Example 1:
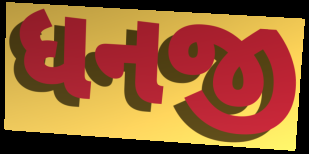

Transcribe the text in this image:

ધનજી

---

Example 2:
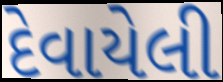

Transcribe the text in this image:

દેવાયેલી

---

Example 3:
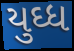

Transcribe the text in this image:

યુઘ્ધ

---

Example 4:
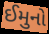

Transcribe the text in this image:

ઈમુનો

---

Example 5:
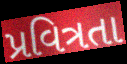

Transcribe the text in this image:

પ્રવિત્રતા